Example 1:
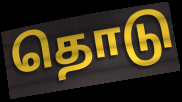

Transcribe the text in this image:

தொடு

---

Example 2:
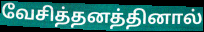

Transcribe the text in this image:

வேசித்தனத்தினால்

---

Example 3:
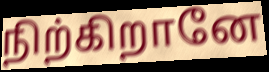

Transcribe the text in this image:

நிற்கிறானே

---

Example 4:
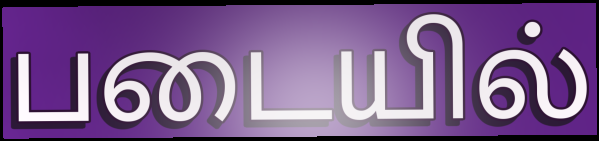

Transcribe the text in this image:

படையில்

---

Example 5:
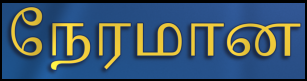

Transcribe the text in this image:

நேரமான